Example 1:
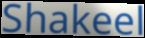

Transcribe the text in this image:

Shakeel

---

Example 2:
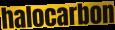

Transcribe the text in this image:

halocarbon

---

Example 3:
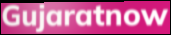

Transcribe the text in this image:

Gujaratnow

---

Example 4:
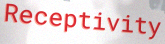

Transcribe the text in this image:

Receptivity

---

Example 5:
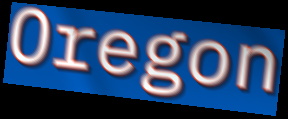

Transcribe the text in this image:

Oregon